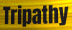
Tripathy